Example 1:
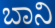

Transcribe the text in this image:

ಬಾನಿ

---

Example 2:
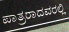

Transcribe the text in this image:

ಪಾತ್ರರಾದವರಲ್ಲಿ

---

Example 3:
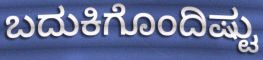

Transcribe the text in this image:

ಬದುಕಿಗೊಂದಿಷ್ಟು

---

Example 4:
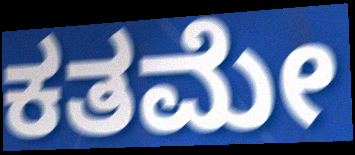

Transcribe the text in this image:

ಕತಮೇ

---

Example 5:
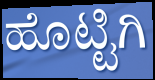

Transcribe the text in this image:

ಹೊಟ್ಟಿಗಿ